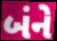
બંને